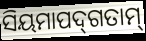
ସିୟମାପଦ୍‌ଗତାମ୍